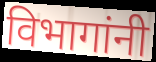
विभागांनी